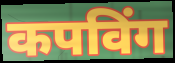
कपविंग